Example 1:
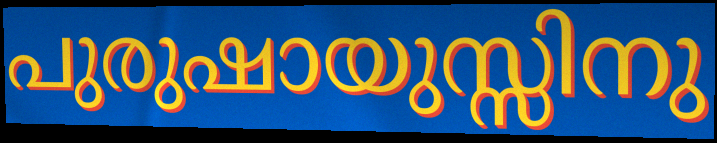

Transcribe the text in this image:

പുരുഷായുസ്സിനു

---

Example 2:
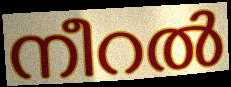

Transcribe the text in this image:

നീറൽ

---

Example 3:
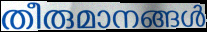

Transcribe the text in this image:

തീരുമാനങ്ങൾ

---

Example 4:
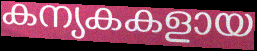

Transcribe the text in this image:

കന്യകകളായ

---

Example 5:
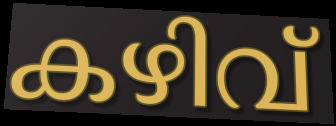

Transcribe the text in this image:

കഴിവ്